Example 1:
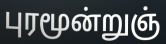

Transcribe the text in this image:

புரமூன்றுஞ்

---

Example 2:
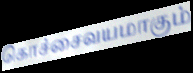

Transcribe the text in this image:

கொச்சைவயமாகும்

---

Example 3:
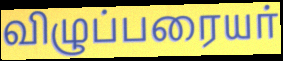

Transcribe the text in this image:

விழுப்பரையர்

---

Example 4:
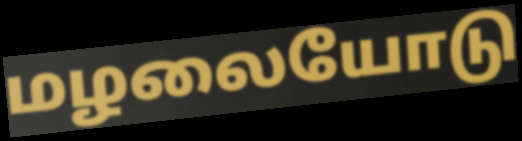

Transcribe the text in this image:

மழலையோடு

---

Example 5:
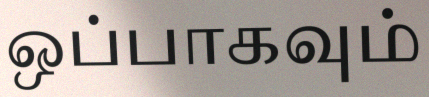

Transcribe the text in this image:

ஒப்பாகவும்